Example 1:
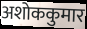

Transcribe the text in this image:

अशोककुमार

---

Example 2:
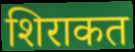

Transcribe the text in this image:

शिराकत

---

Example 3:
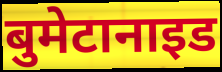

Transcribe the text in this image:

बुमेटानाइड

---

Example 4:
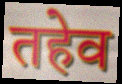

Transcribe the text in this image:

तहेव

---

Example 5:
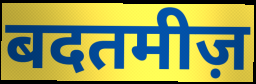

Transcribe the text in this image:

बदतमीज़